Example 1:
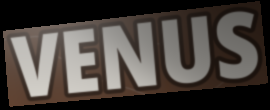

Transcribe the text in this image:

VENUS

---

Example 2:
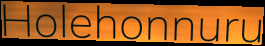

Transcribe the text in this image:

Holehonnuru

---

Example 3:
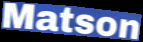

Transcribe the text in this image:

Matson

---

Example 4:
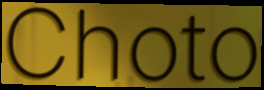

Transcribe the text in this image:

Choto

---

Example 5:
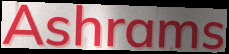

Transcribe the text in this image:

Ashrams